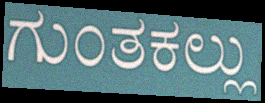
ಗುಂತಕಲ್ಲು